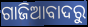
ଗାଜିଆବାଦରୁ